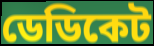
ডেডিকেট